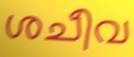
ശചീവ